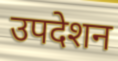
उपदेशन